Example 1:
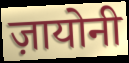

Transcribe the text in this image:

ज़ायोनी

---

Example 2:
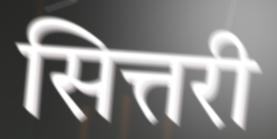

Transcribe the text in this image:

सित्तरी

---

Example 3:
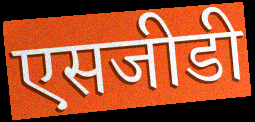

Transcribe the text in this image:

एसजीडी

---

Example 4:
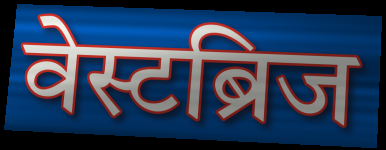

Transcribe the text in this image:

वेस्टब्रिज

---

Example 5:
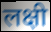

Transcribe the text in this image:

लक्षी